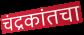
चंद्रकांतचा